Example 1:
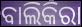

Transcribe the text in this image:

ବାଲିକିରା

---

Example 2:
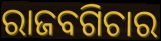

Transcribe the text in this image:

ରାଜବଗିଚାର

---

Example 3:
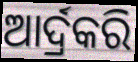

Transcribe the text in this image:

ଆର୍ଦ୍ରକରି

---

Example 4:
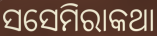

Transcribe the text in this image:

ସସେମିରାକଥା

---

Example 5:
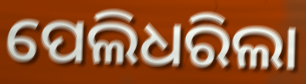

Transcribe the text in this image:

ପେଲିଧରିଲା